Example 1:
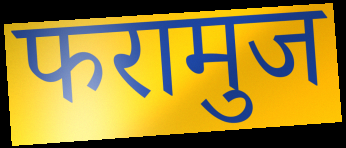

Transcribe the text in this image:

फरामुज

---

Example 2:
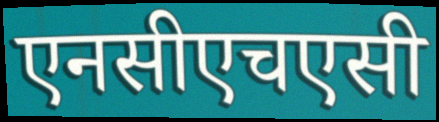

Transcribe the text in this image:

एनसीएचएसी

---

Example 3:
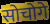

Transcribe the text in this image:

सोचोगे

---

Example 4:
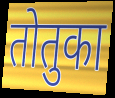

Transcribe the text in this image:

तोतुका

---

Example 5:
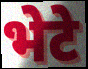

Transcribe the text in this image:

भेटे